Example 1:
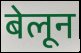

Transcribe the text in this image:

बेलून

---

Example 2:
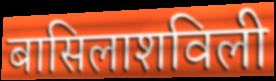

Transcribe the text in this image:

बासिलाशविली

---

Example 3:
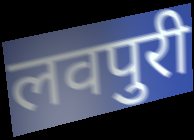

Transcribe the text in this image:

लवपुरी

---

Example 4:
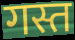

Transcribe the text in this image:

गस्त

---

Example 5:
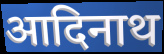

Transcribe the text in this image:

आदिनाथ